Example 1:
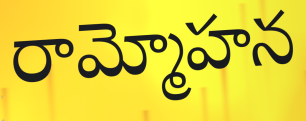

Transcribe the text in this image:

రామ్మోహన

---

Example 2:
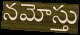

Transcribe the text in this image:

నమోస్తు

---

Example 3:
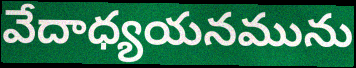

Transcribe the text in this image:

వేదాధ్యయనమును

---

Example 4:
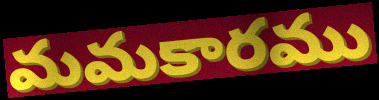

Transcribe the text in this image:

మమకారము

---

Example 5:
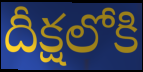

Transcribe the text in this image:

దీక్షలోకి